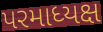
પરમાધ્યક્ષ